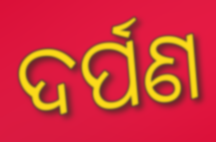
ଦର୍ପଣ